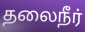
தலைநீர்